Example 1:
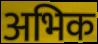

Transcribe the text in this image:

अभिक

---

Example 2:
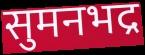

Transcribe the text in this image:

सुमनभद्र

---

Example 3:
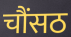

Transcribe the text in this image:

चौंसठ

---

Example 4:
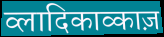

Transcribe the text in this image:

व्लादिकाव्काज़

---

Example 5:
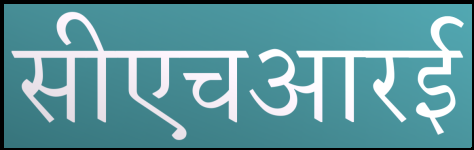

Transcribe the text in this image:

सीएचआरई